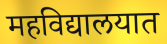
महविद्यालयात